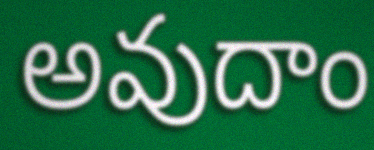
అవుదాం